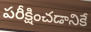
పరీక్షించడానికే